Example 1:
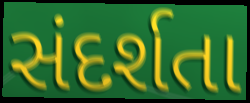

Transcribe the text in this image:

સંદર્શતા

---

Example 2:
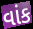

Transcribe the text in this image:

વાંક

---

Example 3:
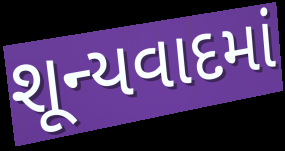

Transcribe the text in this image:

શૂન્યવાદમાં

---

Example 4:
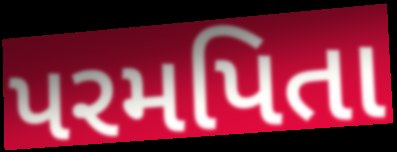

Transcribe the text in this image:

પરમપિતા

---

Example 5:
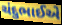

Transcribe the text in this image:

ચંદુભાઈએ